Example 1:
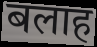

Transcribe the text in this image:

बलाह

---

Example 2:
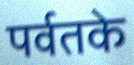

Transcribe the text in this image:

पर्वतके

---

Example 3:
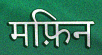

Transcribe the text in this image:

मफ़िन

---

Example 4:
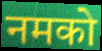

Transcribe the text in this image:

नमको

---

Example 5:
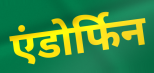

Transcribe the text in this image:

एंडोर्फिन